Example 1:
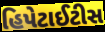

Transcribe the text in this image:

હિપેટાઈટીસ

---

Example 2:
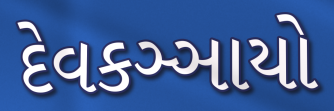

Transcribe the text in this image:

દેવકઞ્ઞાયો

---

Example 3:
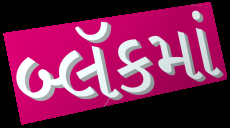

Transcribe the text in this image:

બ્લૅકમાં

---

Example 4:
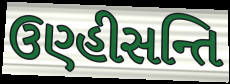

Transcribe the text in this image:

ઉણ્હીસન્તિ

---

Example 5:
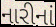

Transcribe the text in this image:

નારીનાં